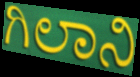
ಗಿಲಾನಿ